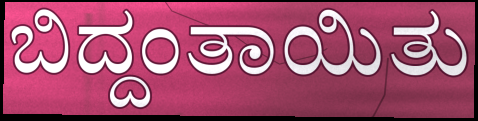
ಬಿದ್ದಂತಾಯಿತು